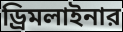
ড্রিমলাইনার